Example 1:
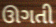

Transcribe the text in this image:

ઊગતી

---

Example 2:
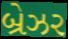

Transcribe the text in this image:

બ્રેઝર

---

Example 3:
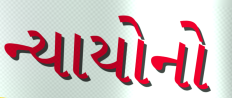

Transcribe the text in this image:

ન્યાયોનો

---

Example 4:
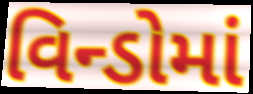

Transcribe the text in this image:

વિન્ડોમાં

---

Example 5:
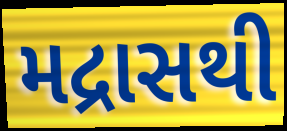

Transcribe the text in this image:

મદ્રાસથી